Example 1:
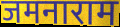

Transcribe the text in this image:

जमनाराम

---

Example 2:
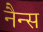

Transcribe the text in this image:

नैन्स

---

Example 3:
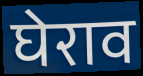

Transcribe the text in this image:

घेराव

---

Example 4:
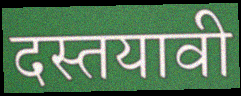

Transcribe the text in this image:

दस्तयावी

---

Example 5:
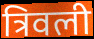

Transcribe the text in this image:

त्रिवली